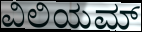
ವಿಲಿಯಮ್